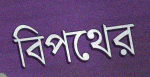
বিপথের